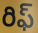
రిఫ్